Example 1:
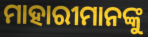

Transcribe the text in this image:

ମାହାରୀମାନଙ୍କୁ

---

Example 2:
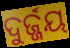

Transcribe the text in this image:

ଦୁର୍ଜ୍ଜୟ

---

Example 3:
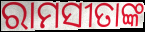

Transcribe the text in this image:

ରାମସୀତାଙ୍କ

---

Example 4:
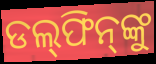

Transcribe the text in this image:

ଡଲ୍‌ଫିନ୍‌ଙ୍କୁ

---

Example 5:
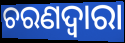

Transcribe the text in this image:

ଚରଣଦ୍ୱାରା